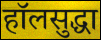
हॉलसुद्धा